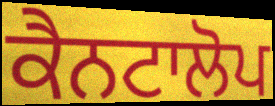
ਕੈਨਟਾਲੋਪ